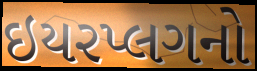
ઇયરપ્લગનો